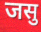
जसु